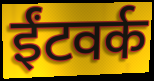
ईंटवर्क